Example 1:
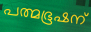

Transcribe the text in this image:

പത്മഭൂഷന്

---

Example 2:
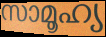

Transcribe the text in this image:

സാമൂഹ്യ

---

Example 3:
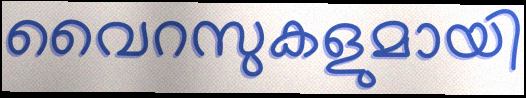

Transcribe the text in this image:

വൈറസുകളുമായി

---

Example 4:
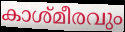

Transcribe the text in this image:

കാശ്മീരവും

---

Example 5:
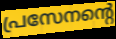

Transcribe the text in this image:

പ്രസേനന്റെ